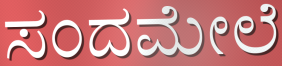
ಸಂದಮೇಲೆ